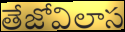
తేజోవిలాస